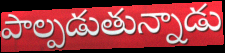
పాల్పడుతున్నాడు